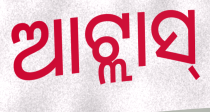
ଆଟ୍ଲାସ୍